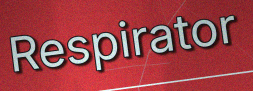
Respirator